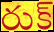
రుక్